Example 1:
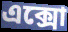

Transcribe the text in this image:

এক্সো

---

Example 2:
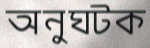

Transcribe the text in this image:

অনুঘটক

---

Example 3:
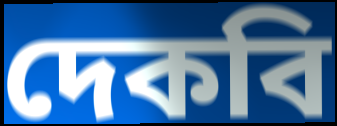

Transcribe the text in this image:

দেকবি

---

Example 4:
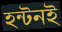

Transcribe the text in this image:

হন্টনই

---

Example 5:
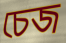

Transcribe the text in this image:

চেজ